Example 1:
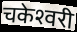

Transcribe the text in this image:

चकेश्वरी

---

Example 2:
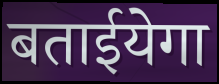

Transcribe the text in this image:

बताईयेगा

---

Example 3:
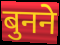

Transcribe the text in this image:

बुनने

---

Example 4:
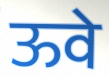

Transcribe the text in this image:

ऊवे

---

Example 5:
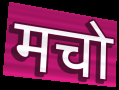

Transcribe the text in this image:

मचो